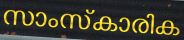
സാംസ്‌കാരിക